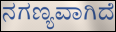
ನಗಣ್ಯವಾಗಿದೆ